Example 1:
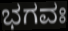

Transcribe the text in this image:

ಭಗವಃ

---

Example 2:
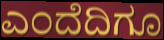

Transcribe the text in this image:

ಎಂದೆದಿಗೂ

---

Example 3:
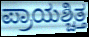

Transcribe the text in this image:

ಪ್ರಾಯಶ್ಚಿತ್ತ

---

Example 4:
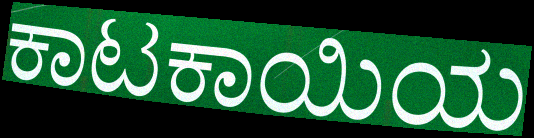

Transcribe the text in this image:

ಕಾಟಕಾಯಿಯ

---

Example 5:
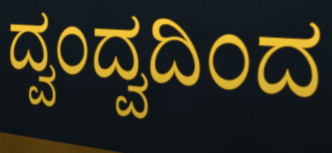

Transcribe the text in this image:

ದ್ವಂದ್ವದಿಂದ